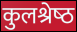
कुलश्रेष्‍ठ